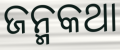
ଜନ୍ମକଥା